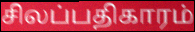
சிலப்பதிகாரம்